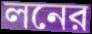
লনের